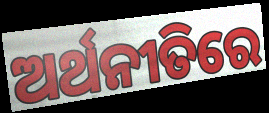
ଅର୍ଥନୀତିରେ